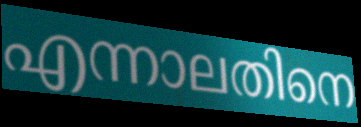
എന്നാലതിനെ